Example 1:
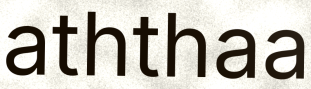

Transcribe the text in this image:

aththaa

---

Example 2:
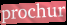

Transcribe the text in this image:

prochur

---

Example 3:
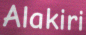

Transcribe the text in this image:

Alakiri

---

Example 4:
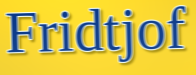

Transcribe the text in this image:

Fridtjof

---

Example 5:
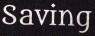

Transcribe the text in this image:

Saving